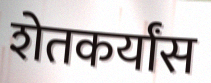
शेतकर्यांस